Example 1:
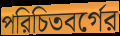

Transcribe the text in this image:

পরিচিতবর্গের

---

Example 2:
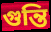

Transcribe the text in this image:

গুন্তি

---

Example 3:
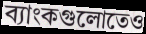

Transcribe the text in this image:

ব্যাংকগুলোতেও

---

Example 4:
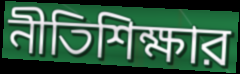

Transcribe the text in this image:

নীতিশিক্ষার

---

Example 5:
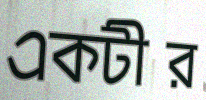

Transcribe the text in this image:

একটীর